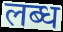
लब्ध